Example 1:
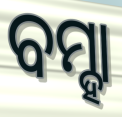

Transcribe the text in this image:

ବମ୍ହା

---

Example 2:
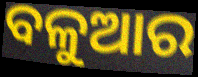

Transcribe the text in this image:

ବଳୁଆର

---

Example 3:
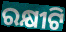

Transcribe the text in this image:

ରକ୍ଷୀଟି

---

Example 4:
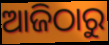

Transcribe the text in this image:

ଆଜିଠାରୁ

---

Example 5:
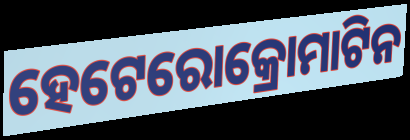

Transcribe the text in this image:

ହେଟେରୋକ୍ରୋମାଟିନ